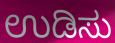
ಉಡಿಸು